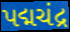
પદ્મચંદ્ર